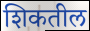
शिकतील